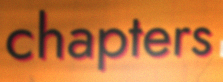
chapters